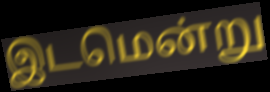
இடமென்று